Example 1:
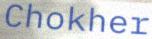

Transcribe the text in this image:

Chokher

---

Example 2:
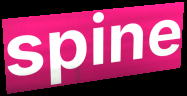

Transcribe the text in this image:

spine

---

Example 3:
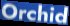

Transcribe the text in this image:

Orchid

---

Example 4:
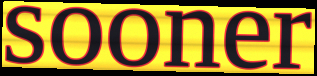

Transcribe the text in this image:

sooner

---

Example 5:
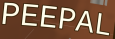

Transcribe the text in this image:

PEEPAL